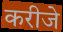
करीजे